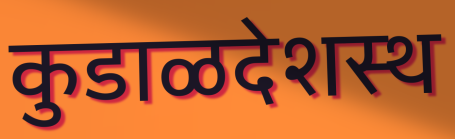
कुडाळदेशस्थ